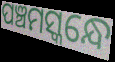
ପଞ୍ଚମସ୍କନ୍ଧେ